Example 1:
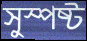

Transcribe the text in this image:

সুস্পষ্ট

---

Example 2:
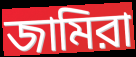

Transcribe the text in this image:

জামিরা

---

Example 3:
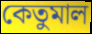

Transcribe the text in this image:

কেতুমাল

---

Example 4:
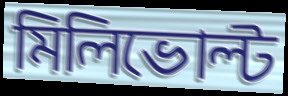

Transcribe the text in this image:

মিলিভোল্ট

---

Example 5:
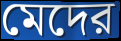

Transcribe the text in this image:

মেদের